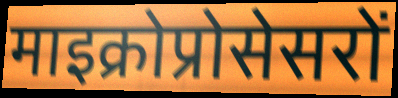
माइक्रोप्रोसेसरों